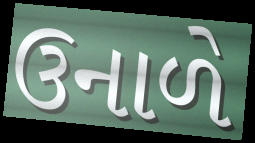
ઉનાળે